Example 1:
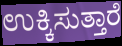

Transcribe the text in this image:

ಉಕ್ಕಿಸುತ್ತಾರೆ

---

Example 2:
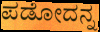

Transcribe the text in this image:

ಪಡೋದನ್ನ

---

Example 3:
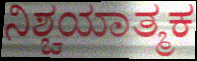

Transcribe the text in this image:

ನಿಶ್ಚಯಾತ್ಮಕ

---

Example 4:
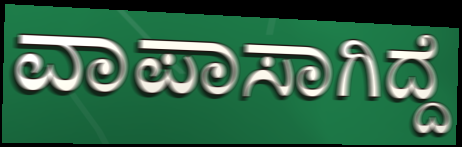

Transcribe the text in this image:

ವಾಪಾಸಾಗಿದ್ದೆ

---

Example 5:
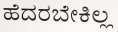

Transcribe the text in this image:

ಹೆದರಬೇಕಿಲ್ಲ